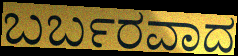
ಬರ್ಬರವಾದ